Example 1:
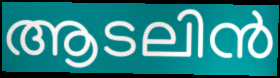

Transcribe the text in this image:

ആടലിൻ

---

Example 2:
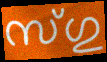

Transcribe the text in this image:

സ്ഗു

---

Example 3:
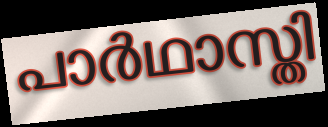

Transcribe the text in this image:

പാർഥാസ്തി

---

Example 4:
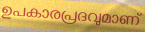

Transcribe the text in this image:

ഉപകാരപ്രദവുമാണ്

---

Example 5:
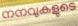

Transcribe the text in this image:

നനവുകളുടെ